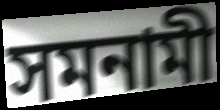
সমনামী